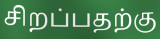
சிறப்பதற்கு